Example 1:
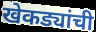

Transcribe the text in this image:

खेकड्यांची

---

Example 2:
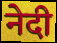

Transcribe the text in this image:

नेदी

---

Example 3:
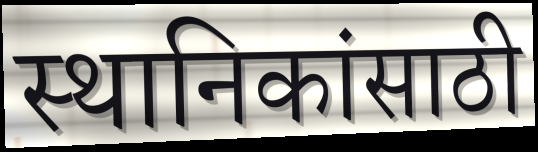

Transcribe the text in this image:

स्थानिकांसाठी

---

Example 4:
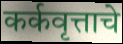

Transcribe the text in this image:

कर्कवृत्ताचे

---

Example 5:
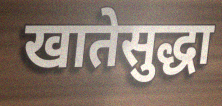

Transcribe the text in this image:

खातेसुद्धा